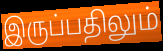
இருப்பதிலும்